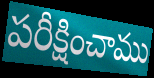
పరీక్షించాము